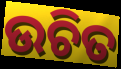
ଉଚିତ